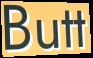
Butt